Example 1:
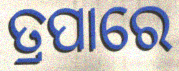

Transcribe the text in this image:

ତ୍ରପାରେ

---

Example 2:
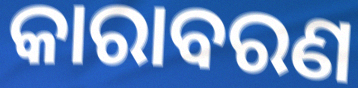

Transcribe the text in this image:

କାରାବରଣ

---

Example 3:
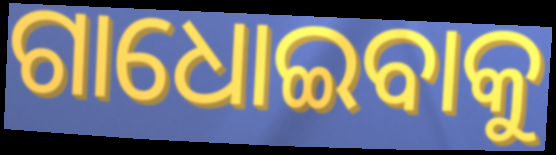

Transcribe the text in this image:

ଗାଧୋଇବାକୁ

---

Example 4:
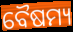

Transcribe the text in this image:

ବୈଷମ୍ୟ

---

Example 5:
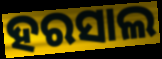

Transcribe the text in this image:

ହରସାଲ